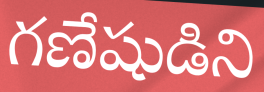
గణేషుడిని